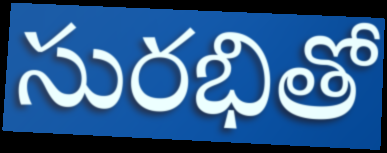
సురభితో